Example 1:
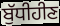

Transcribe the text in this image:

ਬੁੱਧੀਹੀਣ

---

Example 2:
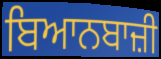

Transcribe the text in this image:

ਬਿਆਨਬਾਜ਼ੀ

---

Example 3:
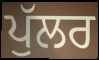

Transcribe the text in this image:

ਪੁੱਲਰ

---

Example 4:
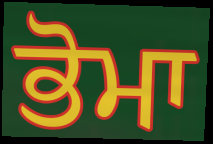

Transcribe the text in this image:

ਭੋਮਾ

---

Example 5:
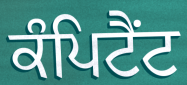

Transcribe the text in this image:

ਕੰਪਿਟੈਂਟ